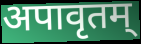
अपावृतम्